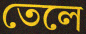
তেলে